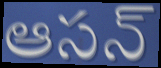
ఆసన్